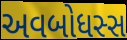
અવબોધસ્સ